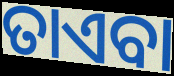
ତାଏବା